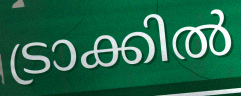
ട്രാക്കിൽ